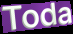
Toda